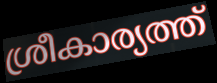
ശ്രീകാര്യത്ത്